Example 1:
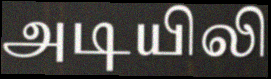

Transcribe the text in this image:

அடியிலி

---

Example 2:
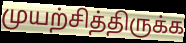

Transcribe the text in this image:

முயற்சித்திருக்க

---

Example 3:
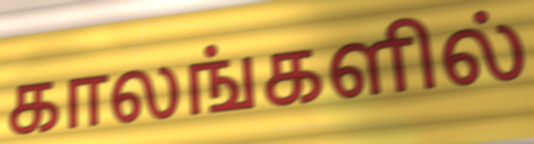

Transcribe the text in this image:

காலங்களில்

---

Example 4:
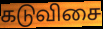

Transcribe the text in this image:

கடுவிசை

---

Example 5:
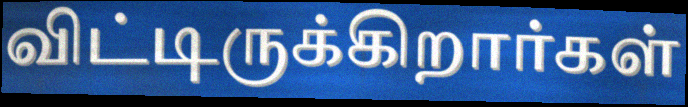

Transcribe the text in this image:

விட்டிருக்கிறார்கள்